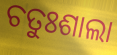
ଚତୁଃଶାଲା